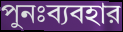
পুনঃব্যবহার